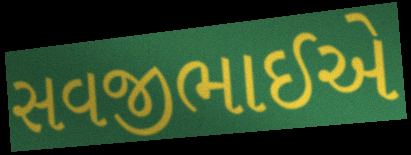
સવજીભાઈએ